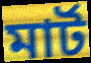
মার্ট